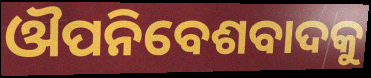
ଔପନିବେଶବାଦକୁ